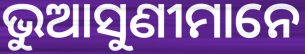
ଭୁଆସୁଣୀମାନେ